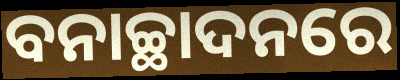
ବନାଚ୍ଛାଦନରେ